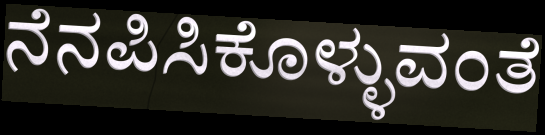
ನೆನಪಿಸಿಕೊಳ್ಳುವಂತೆ